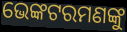
ଭେଙ୍କଟରମଣଙ୍କୁ